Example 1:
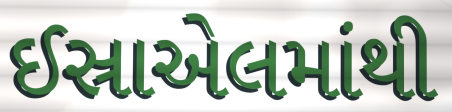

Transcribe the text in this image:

ઈસ્રાએલમાંથી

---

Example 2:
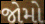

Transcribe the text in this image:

જોમો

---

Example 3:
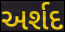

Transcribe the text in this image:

અર્શદ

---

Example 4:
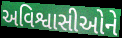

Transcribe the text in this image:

અવિશ્વાસીઓને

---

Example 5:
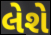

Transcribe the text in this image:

લેશે